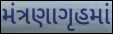
મંત્રણાગૃહમાં